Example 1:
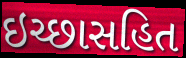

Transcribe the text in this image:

ઇચ્છાસહિત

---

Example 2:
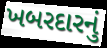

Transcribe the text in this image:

ખબરદારનું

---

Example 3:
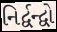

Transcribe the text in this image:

નિર્દ્વન્દ્વો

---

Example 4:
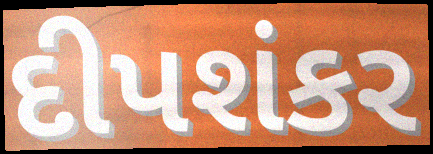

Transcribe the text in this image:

દીપશંકર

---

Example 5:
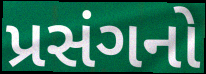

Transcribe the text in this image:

પ્રસંગનો